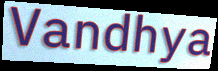
Vandhya